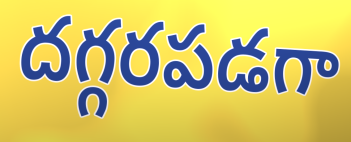
దగ్గరపడగా